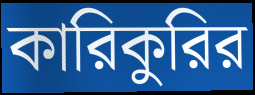
কারিকুরির